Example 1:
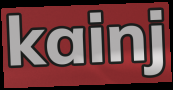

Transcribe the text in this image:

kainj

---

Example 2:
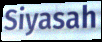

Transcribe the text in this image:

Siyasah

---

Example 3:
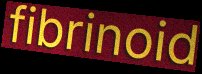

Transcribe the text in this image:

fibrinoid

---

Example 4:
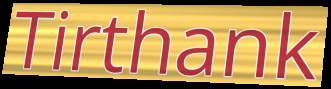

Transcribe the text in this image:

Tirthank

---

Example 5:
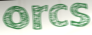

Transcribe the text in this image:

orcs